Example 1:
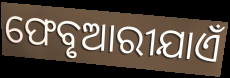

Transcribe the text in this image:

ଫେବୃଆରୀଯାଏଁ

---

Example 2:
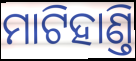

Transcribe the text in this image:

ମାଟିହାଣ୍ତି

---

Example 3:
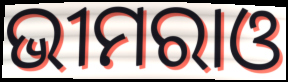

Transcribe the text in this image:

ଭୀମରାଓ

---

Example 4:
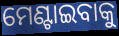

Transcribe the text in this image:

ମେଣ୍ଟାଇବାକୁ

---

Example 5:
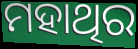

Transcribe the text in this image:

ମହାଥିର